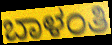
ಬಾಳಂತಿ